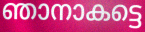
ഞാനാകട്ടെ